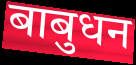
बाबुधन